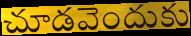
చూడవెందుకు